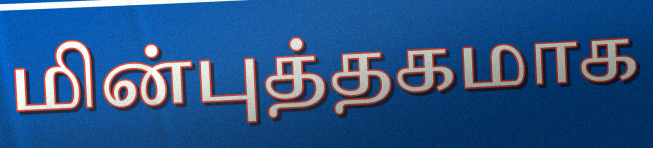
மின்புத்தகமாக